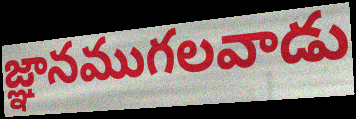
జ్ఞానముగలవాడు